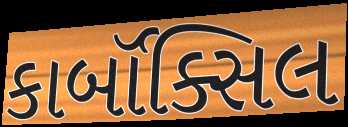
કાર્બૉક્સિલ